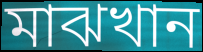
মাঝখান